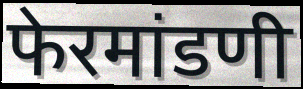
फेरमांडणी